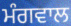
ਮੰਗਵਾਲ